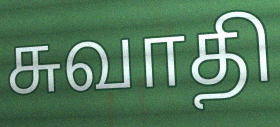
சுவாதி